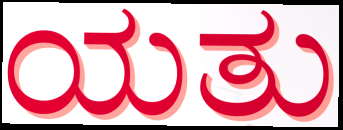
ಯತು